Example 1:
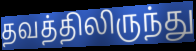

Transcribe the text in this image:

தவத்திலிருந்து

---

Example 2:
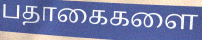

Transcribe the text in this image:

பதாகைகளை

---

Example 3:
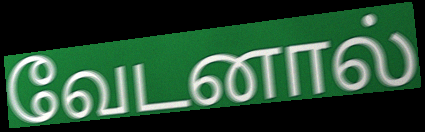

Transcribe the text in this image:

வேடனால்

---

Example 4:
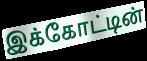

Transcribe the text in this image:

இக்கோட்டின்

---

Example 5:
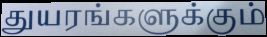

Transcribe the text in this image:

துயரங்களுக்கும்